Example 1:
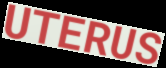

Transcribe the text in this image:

UTERUS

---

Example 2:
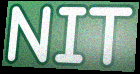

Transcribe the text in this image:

NIT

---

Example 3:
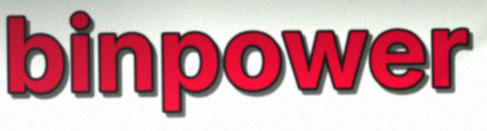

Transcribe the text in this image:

binpower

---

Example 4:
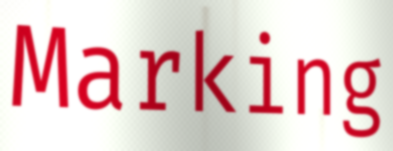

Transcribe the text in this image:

Marking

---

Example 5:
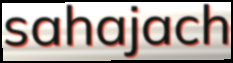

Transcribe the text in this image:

sahajach